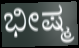
ಭೀಷ್ಮ